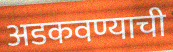
अडकवण्याची